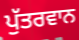
ਪੁੱਤਰਵਾਨ